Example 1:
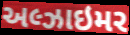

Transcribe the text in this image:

અલ્ઝાઇમર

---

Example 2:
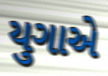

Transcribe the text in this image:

યુગાએ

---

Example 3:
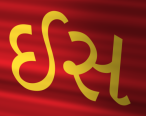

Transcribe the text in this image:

ઈસ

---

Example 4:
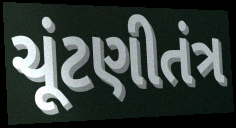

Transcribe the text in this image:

ચૂંટણીતંત્ર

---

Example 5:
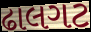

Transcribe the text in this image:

ઢાલગટ